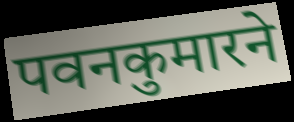
पवनकुमारने